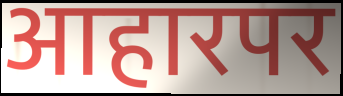
आहारपर